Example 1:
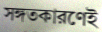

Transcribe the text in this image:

সঙ্গতকারণেই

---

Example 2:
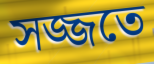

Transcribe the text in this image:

সজ্জতে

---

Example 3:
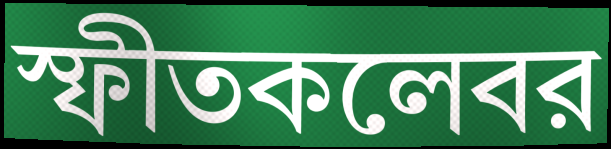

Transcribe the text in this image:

স্ফীতকলেবর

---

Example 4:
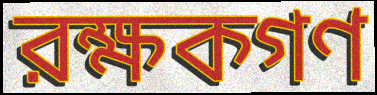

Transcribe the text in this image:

রক্ষকগণ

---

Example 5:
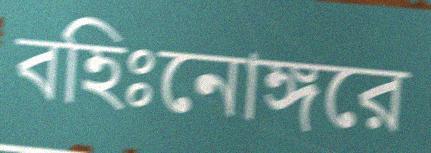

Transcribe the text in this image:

বহিঃনোঙ্গরে